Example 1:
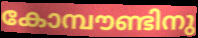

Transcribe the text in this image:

കോമ്പൗണ്ടിനു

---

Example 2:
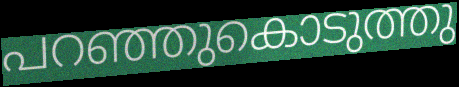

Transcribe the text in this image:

പറഞ്ഞുകൊടുത്തു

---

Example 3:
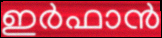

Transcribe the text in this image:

ഇർഫാൻ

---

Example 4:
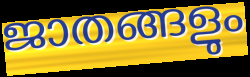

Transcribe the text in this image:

ജാതങ്ങളും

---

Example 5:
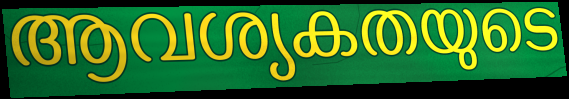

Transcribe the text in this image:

ആവശ്യകതയുടെ